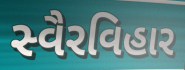
સ્વૈરવિહાર